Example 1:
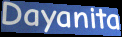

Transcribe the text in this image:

Dayanita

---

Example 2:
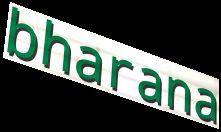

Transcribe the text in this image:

bharana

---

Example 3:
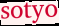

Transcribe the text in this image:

sotyo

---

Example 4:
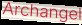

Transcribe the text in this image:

Archangel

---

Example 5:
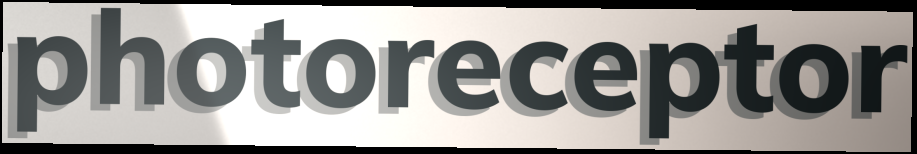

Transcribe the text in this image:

photoreceptor